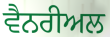
ਵੈਨਰੀਅਲ